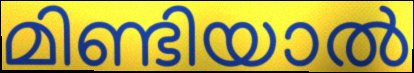
മിണ്ടിയാൽ